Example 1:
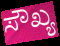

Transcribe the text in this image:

ಸೌಖ್ಯ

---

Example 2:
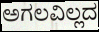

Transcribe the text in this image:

ಅಗಲವಿಲ್ಲದ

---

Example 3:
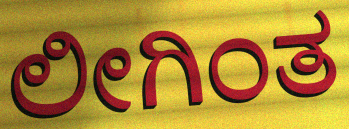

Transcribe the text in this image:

ಲೀಗಿಂತ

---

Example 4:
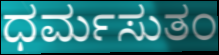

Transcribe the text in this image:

ಧರ್ಮಸುತಂ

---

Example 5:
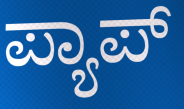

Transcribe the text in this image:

ಪ್ಯಾಪ್